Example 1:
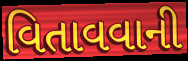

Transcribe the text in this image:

વિતાવવાની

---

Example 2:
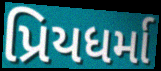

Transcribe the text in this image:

પ્રિયધર્મા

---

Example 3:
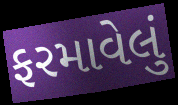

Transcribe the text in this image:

ફરમાવેલું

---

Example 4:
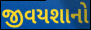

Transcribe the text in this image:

જીવયશાનો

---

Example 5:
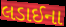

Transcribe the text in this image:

લડાઈના